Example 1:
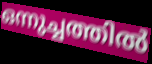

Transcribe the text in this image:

ഒന്നുച്ചത്തിൽ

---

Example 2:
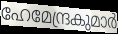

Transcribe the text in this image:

ഹേമേന്ദ്രകുമാർ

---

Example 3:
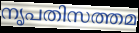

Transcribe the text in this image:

നൃപതിസത്തമ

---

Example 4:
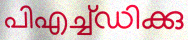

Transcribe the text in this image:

പിഎച്ച്ഡിക്കു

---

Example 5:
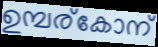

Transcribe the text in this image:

ഉമ്പര്കോന്